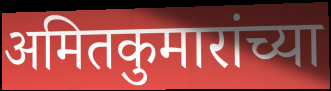
अमितकुमारांच्या